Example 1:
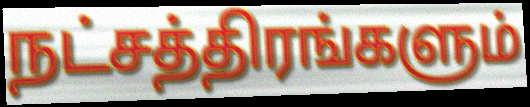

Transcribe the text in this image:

நட்சத்திரங்களும்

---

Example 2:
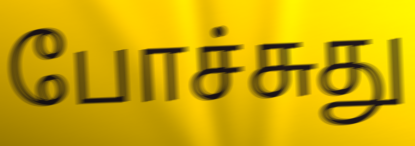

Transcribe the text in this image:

போச்சுது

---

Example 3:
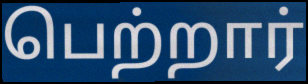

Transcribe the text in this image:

பெற்றார்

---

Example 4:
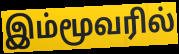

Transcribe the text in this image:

இம்மூவரில்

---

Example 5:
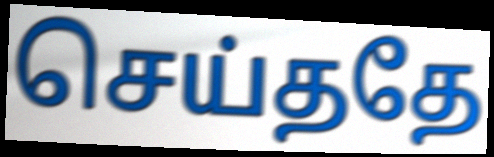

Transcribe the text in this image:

செய்ததே